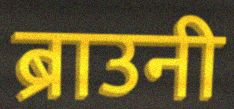
ब्राउनी